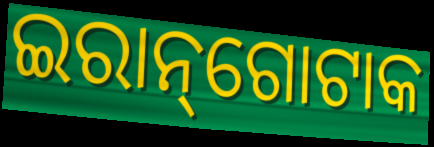
ଇରାନ୍‌ଗୋଟାକ